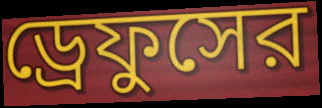
ড্রেফুসের